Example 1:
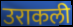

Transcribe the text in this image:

उराकली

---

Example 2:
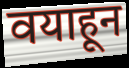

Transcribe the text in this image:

वयाहून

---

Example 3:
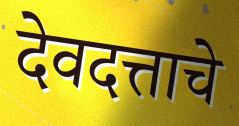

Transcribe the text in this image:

देवदत्ताचे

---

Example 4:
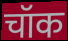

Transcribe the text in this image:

चॉक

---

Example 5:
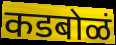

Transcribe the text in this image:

कडबोळं